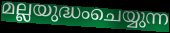
മല്ലയുദ്ധംചെയ്യുന്ന